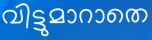
വിട്ടുമാറാതെ